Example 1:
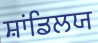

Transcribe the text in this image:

ਸ਼ਾਂਡਿਲਯ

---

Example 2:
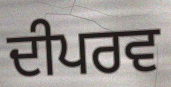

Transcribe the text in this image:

ਦੀਪਰਵ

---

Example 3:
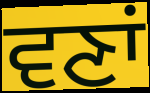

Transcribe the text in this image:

ਵਣਾਂ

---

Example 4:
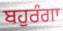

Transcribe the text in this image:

ਬਹੁਰੰਗਾ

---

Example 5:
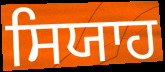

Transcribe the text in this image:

ਸਿਯਾਹ